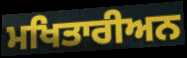
ਮਖਿਤਾਰੀਅਨ